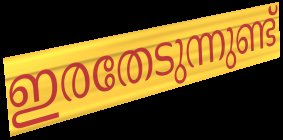
ഇരതേടുന്നുണ്ട്